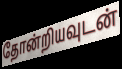
தோன்றியவுடன்